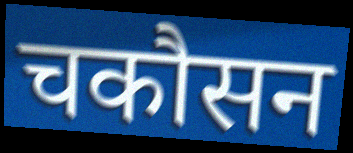
चकौसन